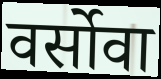
वर्सोवा